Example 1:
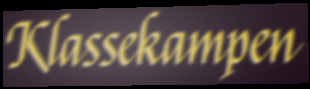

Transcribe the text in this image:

Klassekampen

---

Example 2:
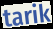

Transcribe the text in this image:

tarik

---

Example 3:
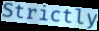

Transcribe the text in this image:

Strictly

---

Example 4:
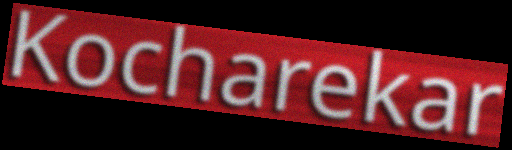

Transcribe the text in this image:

Kocharekar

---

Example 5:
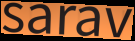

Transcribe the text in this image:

sarav